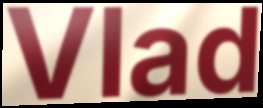
Vlad